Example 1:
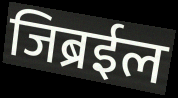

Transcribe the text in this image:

जिब्रईल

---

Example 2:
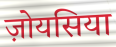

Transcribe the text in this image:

ज़ोयसिया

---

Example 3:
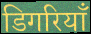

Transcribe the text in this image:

डिगरियाँ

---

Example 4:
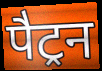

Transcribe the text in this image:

पैट्रन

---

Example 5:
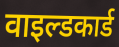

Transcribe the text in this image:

वाइल्डकार्ड